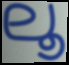
ലൂ